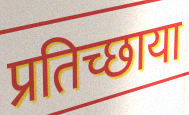
प्रतिच्छाया